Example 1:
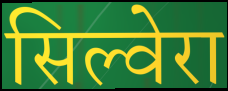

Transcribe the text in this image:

सिल्वेरा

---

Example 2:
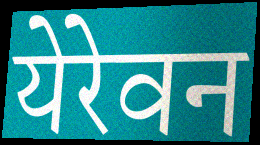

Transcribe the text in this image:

येरेवन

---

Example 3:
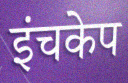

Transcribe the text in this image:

इंचकेप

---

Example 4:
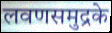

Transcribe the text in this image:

लवणसमुद्रके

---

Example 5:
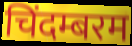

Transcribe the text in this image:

चिंदम्बरम